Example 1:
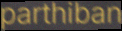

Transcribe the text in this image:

parthiban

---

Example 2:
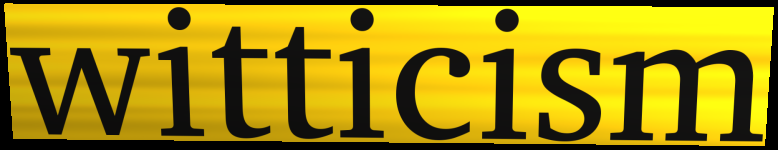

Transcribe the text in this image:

witticism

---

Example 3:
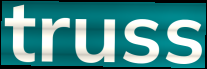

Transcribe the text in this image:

truss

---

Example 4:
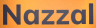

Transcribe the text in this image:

Nazzal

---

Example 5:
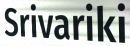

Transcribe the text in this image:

Srivariki